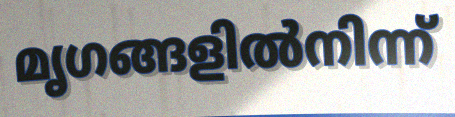
മൃഗങ്ങളിൽനിന്ന്